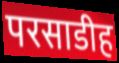
परसाडीह